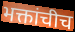
भक्तांचीच